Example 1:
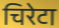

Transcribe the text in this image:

चिरेटा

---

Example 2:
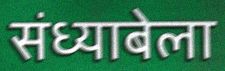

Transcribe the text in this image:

संध्याबेला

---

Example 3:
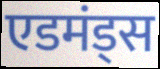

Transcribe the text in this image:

एडमंड्स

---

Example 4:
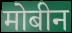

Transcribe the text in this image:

मोबीन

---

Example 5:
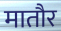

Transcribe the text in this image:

मातौर